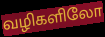
வழிகளிலோ